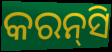
କରନ୍‌ସି